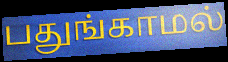
பதுங்காமல்